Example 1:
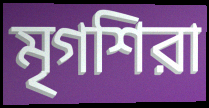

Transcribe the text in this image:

মৃগশিরা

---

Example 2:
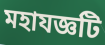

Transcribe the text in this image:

মহাযজ্ঞটি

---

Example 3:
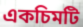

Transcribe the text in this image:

একচিমটি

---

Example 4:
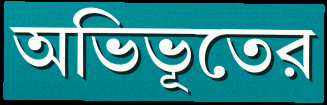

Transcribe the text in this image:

অভিভূতের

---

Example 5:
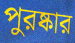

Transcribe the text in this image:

পুরষ্কার